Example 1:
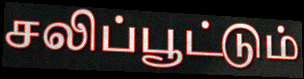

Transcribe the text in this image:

சலிப்பூட்டும்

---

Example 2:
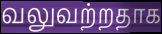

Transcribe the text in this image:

வலுவற்றதாக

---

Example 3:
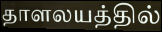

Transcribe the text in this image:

தாளலயத்தில்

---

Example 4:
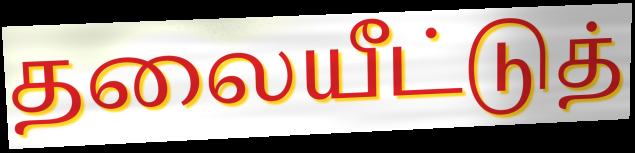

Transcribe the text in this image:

தலையீட்டுத்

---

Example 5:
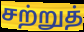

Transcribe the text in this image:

சற்றுத்